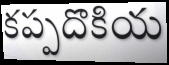
కప్పదొకియ